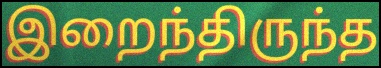
இறைந்திருந்த